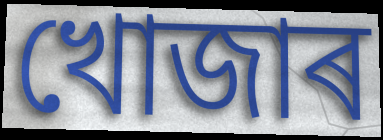
খোজাৰ